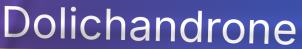
Dolichandrone